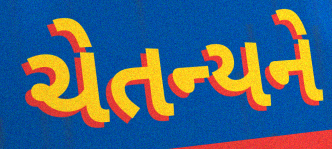
ચેતન્યને